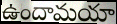
ఉందామయా